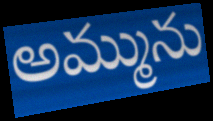
అమ్మును